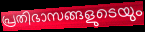
പ്രതിഭാസങ്ങളുടെയും